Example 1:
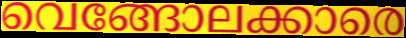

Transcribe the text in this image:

വെങ്ങോലക്കാരെ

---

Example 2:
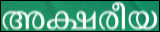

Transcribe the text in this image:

അക്ഷരീയ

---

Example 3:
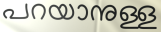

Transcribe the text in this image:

പറയാനുള്ള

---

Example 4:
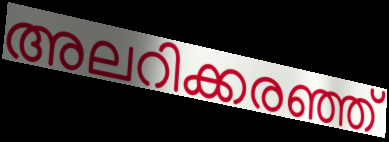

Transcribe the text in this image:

അലറിക്കരഞ്ഞ്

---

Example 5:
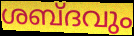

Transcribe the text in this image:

ശബ്ദവും